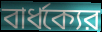
বার্ধক্যের